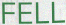
FELL